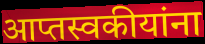
आप्तस्वकीयांना